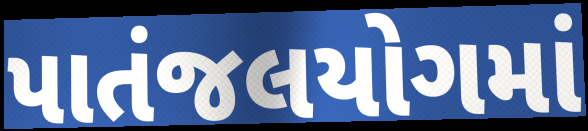
પાતંજલયોગમાં